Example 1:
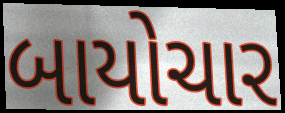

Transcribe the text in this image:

બાયોચાર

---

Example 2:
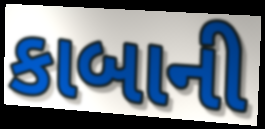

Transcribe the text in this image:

કાબાની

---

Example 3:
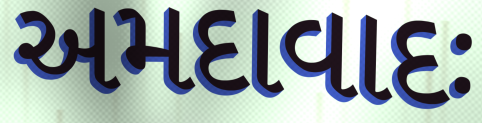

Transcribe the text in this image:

અમદાવાદઃ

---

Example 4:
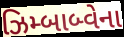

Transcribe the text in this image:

ઝિમ્બાબ્વેના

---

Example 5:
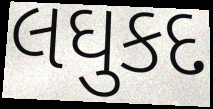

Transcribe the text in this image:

લઘુકદ